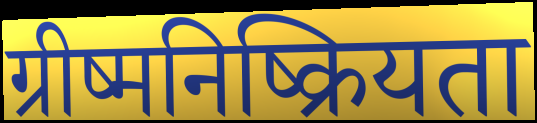
ग्रीष्मनिष्क्रियता